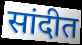
सांदीत